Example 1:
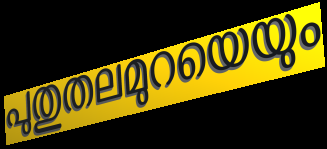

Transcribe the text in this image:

പുതുതലമുറയെയും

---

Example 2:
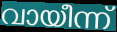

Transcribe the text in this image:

വായീന്ന്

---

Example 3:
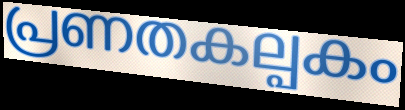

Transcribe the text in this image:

പ്രണതകല്പകം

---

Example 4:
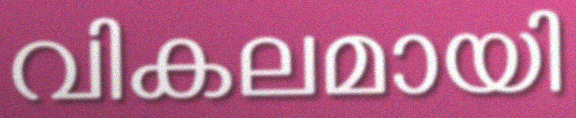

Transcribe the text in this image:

വികലമായി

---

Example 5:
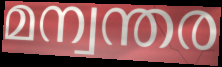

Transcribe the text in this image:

മന്വന്തര